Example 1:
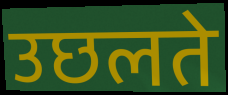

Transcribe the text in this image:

उछलते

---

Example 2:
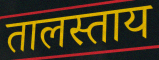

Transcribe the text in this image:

तालस्ताय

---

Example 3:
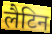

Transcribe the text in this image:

लैटिन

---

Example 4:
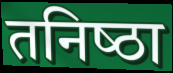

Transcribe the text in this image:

तनिष्‍ठा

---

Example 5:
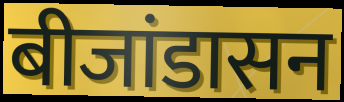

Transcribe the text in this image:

बीजांडासन